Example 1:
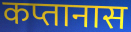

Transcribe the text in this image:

कप्तानास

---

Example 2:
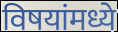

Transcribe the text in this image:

विषयांमध्ये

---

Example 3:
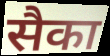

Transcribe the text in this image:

सैका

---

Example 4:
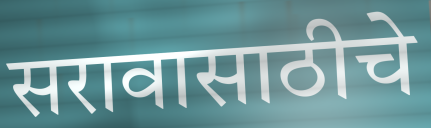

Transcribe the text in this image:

सरावासाठीचे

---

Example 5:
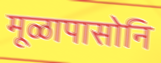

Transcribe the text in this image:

मूळापासोनि